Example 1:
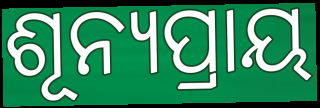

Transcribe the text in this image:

ଶୂନ୍ୟପ୍ରାୟ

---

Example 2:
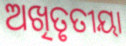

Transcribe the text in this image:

ଅଖିତୃତୀୟା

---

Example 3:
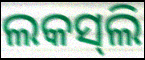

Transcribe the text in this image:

ଲକସ୍‍ଲି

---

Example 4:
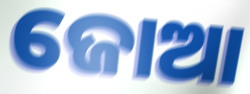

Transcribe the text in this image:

ଜୋଆ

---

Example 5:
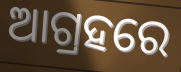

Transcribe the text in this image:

ଆଗ୍ରହରେ